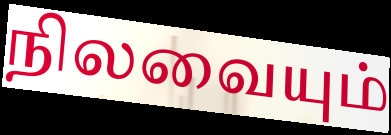
நிலவையும்